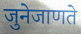
जुनेजाणते